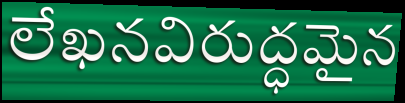
లేఖనవిరుద్ధమైన